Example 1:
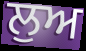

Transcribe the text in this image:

ਲੁਅ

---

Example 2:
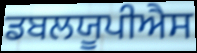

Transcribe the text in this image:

ਡਬਲਯੂਪੀਐਸ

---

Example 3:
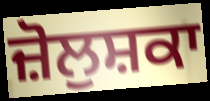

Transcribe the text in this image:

ਜ਼ੋਲੁਸ਼ਕਾ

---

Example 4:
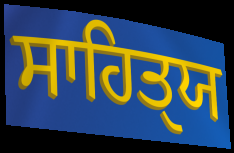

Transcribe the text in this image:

ਸਾਹਿਤੑਯ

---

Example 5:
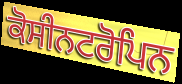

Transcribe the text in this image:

ਕੋਸੀਨਟਰੋਪਿਨ